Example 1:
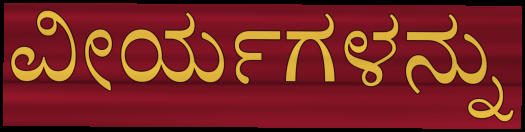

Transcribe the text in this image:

ವೀರ್ಯಗಳನ್ನು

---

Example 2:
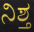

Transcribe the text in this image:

ನಿಶ್ತ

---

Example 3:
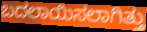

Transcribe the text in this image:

ಬದಲಾಯಿಸಲಾಗಿತ್ತು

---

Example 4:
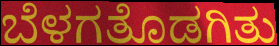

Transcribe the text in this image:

ಬೆಳಗತೊಡಗಿತು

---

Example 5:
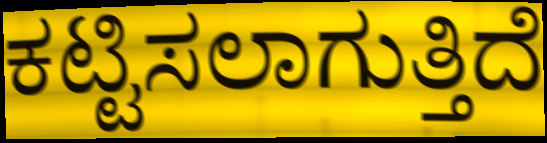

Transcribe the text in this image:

ಕಟ್ಟಿಸಲಾಗುತ್ತಿದೆ